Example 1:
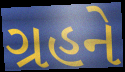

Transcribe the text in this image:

ગ્રહને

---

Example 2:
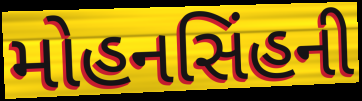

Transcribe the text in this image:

મોહનસિંહની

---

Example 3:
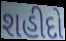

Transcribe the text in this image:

શહીદો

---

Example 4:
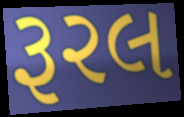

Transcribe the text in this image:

રૂરલ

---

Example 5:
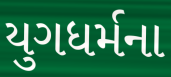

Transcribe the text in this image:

યુગધર્મના